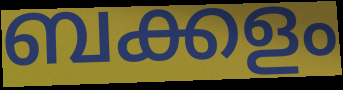
ബക്കളം